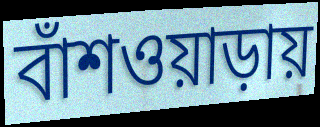
বাঁশওয়াড়ায়